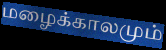
மழைக்காலமும்